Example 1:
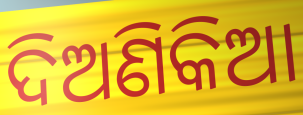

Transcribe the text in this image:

ଦିଅଣିକିଆ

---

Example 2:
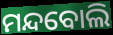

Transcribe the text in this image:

ମନ୍ଦବୋଲି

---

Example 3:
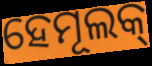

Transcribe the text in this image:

ହେମୂଲକ୍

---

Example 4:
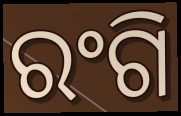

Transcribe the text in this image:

ରଂଗି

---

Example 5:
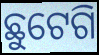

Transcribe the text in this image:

ଛୁଟେଗି